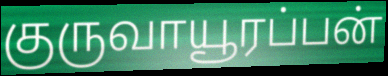
குருவாயூரப்பன்